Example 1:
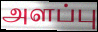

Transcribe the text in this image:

அளப்பு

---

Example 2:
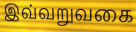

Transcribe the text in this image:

இவ்வறுவகை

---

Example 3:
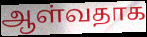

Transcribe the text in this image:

ஆள்வதாக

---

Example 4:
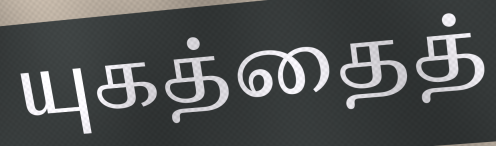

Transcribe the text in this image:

யுகத்தைத்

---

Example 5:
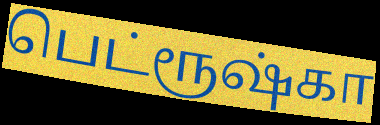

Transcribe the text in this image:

பெட்ரூஷ்கா